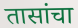
तासांचा